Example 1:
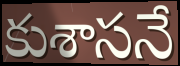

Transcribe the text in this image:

కుశాసనే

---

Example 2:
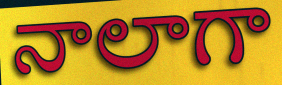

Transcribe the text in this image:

నాలాగా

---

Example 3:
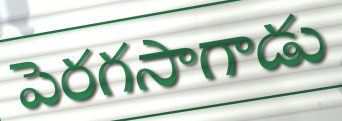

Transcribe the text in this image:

పెరగసాగాడు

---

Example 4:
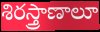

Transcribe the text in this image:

శిరస్త్రాణాలూ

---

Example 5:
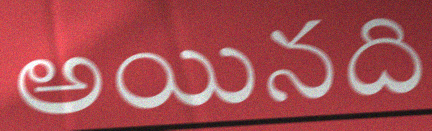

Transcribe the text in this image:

అయినది